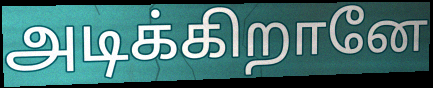
அடிக்கிறானே